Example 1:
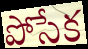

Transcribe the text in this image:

పోసేక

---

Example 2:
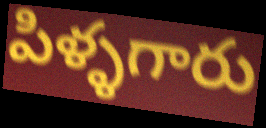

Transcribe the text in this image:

పిళ్ళగారు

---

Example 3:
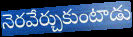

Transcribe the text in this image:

నెరవేర్చుకుంటాడు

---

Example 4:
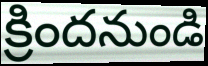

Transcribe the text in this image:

క్రిందనుండి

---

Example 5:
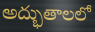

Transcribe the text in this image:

అద్భుతాలలో